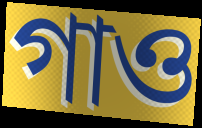
গাও